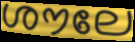
ശൗലേ